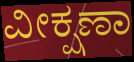
ವೀಕ್ಷಣಾ